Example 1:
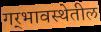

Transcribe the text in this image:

गर्भावस्थेतील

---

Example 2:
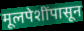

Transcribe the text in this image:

मूलपेशींपासून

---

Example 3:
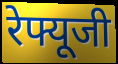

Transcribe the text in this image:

रेफ्यूजी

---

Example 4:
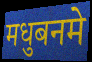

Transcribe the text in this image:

मधुबनमे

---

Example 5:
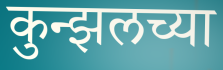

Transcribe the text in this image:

कुन्झलच्या